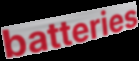
batteries